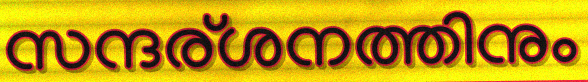
സന്ദര്ശനത്തിനും